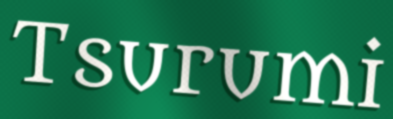
Tsurumi